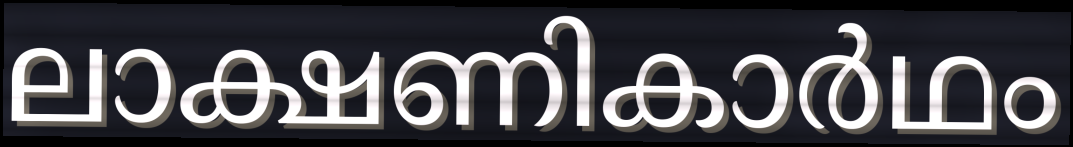
ലാക്ഷണികാർഥം